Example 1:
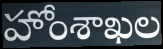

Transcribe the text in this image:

హోంశాఖల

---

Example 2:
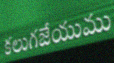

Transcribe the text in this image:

కలుగజేయుము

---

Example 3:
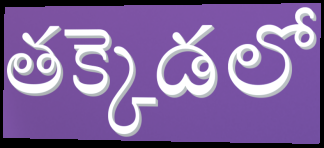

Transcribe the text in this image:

తక్కెడలో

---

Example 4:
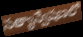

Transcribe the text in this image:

సత్యాన్వేషణలో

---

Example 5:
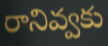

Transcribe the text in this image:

రానివ్వకు